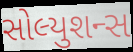
સોલ્યુશન્સ